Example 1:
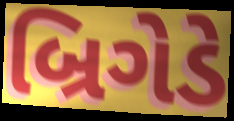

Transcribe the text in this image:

બ્રિગેડે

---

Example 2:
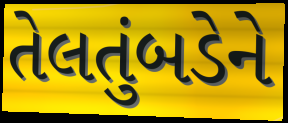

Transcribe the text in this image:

તેલતુંબડેને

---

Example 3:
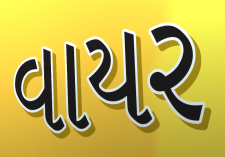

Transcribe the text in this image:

વાયર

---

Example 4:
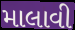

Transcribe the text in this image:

માલાવી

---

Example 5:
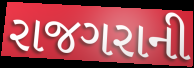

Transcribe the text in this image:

રાજગરાની